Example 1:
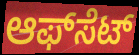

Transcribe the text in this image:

ಆಫ್‍ಸೆಟ್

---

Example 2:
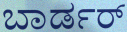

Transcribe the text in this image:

ಬಾರ್ಡರ್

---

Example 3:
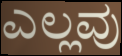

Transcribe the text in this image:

ಎಲ್ಲವು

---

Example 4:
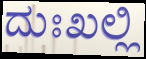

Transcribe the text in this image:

ದುಃಖಲ್ಲಿ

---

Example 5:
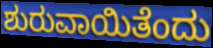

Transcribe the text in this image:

ಶುರುವಾಯಿತೆಂದು